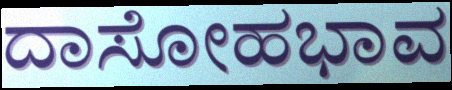
ದಾಸೋಹಭಾವ